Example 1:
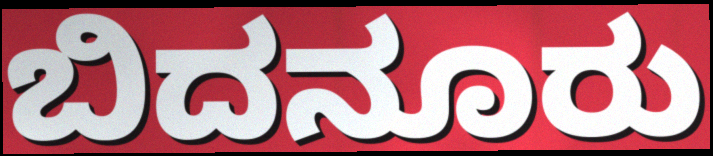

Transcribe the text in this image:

ಬಿದನೂರು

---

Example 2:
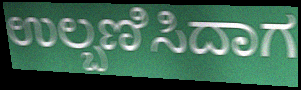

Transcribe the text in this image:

ಉಲ್ಬಣಿಸಿದಾಗ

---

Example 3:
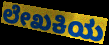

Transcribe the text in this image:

ಲೇಖಕಿಯ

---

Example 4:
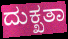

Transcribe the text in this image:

ದುಕ್ಖತಾ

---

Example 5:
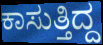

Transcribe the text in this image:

ಕಾಸುತ್ತಿದ್ದ